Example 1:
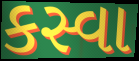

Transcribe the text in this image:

કસ્વા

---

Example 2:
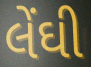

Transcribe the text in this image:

લેંઘી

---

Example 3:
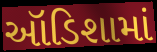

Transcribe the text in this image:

ઑડિશામાં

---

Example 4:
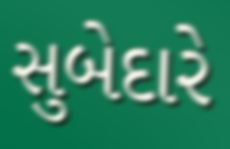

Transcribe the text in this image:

સુબેદારે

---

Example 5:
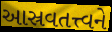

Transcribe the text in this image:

આસ્રવતત્ત્વને